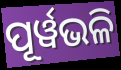
ପୂର୍ୱଭଳି